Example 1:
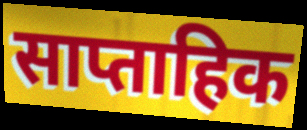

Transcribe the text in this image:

साप्ताहिक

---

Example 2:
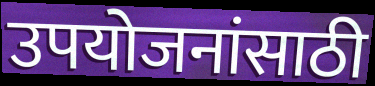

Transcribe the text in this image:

उपयोजनांसाठी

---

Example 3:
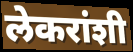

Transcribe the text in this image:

लेकरांशी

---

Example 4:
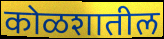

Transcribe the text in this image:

कोळशातील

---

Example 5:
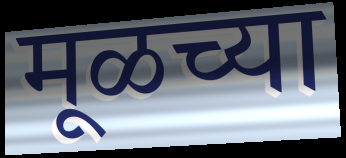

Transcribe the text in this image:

मूळच्या